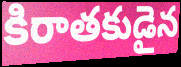
కిరాతకుడైన